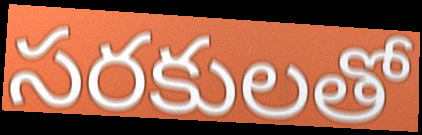
సరకులతో